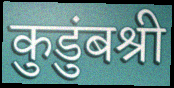
कुडुंबश्री